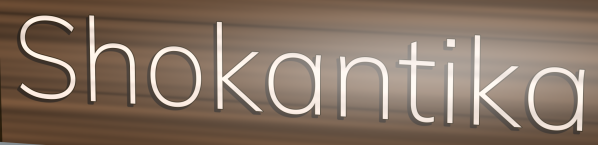
Shokantika